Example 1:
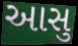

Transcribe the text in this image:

આસુ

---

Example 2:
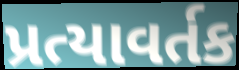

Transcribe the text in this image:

પ્રત્યાવર્તક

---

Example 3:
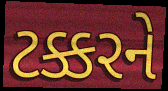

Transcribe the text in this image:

ટક્કરને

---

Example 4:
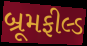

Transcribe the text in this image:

બ્રૂમફીલ્ડ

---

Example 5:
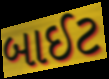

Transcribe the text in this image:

બાઈટ